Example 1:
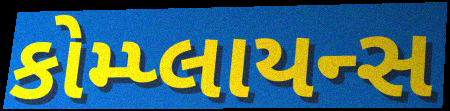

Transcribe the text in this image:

કોમ્પ્લાયન્સ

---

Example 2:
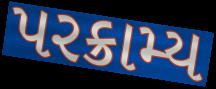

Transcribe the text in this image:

પરક્રામ્ય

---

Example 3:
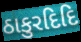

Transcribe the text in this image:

ઠાકુરદિદિ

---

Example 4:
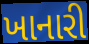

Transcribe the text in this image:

ખાનારી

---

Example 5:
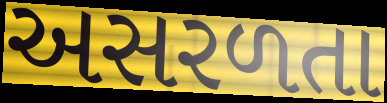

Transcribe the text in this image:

અસરળતા